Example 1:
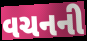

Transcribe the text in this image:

વચનની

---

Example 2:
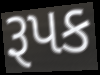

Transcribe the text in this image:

રૂપક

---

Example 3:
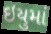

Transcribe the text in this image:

ઇયુમાં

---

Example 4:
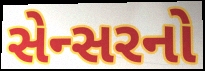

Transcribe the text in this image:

સેન્સરનો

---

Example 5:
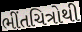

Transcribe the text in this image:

ભીંતચિત્રોથી